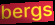
bergs